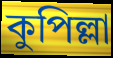
কুপিল্লা